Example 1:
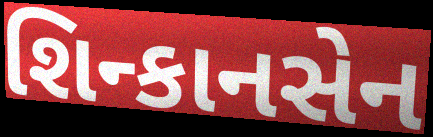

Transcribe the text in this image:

શિન્કાનસેન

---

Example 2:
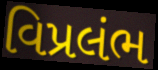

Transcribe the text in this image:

વિપ્રલંભ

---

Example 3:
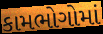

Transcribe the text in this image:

કામભોગોમાં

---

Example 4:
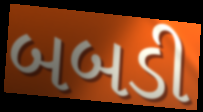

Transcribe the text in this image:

બબડી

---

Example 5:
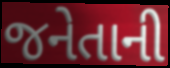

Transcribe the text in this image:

જનેતાની